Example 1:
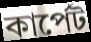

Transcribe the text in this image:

কার্পেট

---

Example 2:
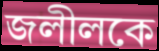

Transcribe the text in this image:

জলীলকে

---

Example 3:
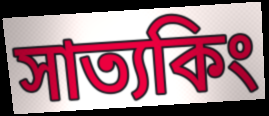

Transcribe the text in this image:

সাত্যকিং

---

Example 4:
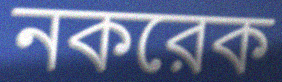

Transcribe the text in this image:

নকরেক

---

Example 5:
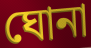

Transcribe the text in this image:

ঘোনা